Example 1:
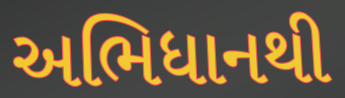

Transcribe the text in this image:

અભિધાનથી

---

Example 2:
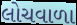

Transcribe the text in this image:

લોચવાળા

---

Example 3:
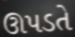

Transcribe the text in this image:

ઊપડતે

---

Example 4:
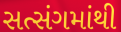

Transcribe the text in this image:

સત્સંગમાંથી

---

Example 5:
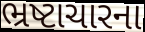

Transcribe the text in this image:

ભ્રષ્ટાચારના